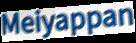
Meiyappan